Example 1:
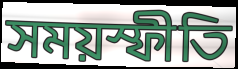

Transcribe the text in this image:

সময়স্ফীতি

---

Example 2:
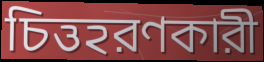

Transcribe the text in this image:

চিত্তহরণকারী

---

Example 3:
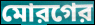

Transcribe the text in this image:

মোরগের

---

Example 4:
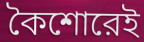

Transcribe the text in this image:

কৈশোরেই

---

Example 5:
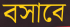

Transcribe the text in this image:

বসাবে